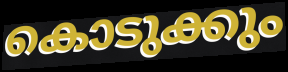
കൊടുക്കും